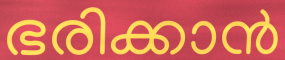
ഭരിക്കാൻ